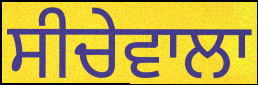
ਸੀਚੇਵਾਲਾ